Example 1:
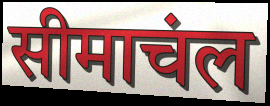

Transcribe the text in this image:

सीमाचंल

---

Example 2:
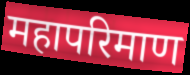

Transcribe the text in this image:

महापरिमाण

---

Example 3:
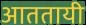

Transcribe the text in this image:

आततायी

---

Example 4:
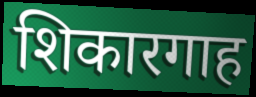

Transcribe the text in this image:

शिकारगाह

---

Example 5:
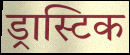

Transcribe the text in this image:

ड्रास्टिक